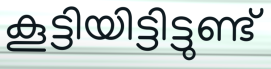
കൂട്ടിയിട്ടിട്ടുണ്ട്